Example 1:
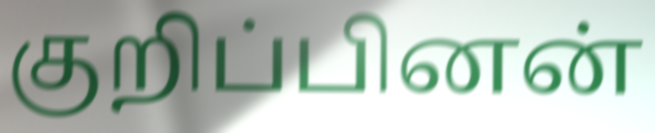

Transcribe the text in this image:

குறிப்பினன்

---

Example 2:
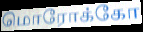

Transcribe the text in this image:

மொரோக்கோ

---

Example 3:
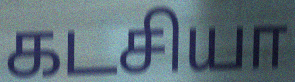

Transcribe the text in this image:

கடசியா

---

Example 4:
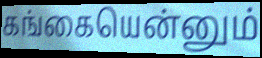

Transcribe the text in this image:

கங்கையென்னும்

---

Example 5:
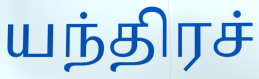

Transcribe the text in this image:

யந்திரச்